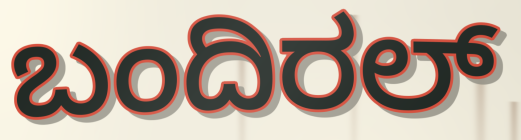
ಬಂದಿರಲ್